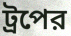
ট্রপের